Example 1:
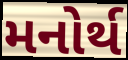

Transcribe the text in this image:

મનોર્થ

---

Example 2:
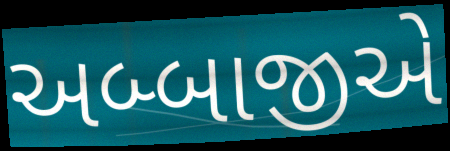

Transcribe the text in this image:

અબ્બાજીએ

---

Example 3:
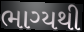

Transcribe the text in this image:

ભાગ્યથી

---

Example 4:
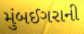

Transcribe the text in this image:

મુંબઈગરાની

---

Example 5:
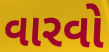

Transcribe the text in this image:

વારવો